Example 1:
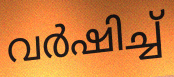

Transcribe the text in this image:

വർഷിച്ച്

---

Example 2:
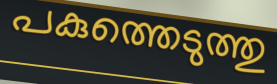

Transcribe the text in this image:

പകുത്തെടുത്തു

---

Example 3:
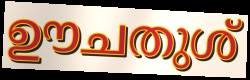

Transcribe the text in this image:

ഊചതുശ്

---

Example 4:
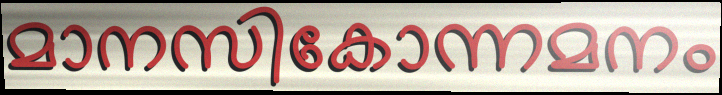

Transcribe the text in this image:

മാനസികോന്നമനം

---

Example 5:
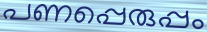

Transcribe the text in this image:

പണപ്പെരുപ്പം